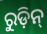
ରୁଡ଼ିନ୍